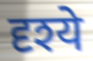
दृश्‍ये